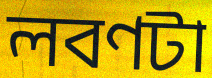
লবণটা